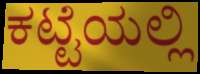
ಕಟ್ಟೆಯಲ್ಲಿ